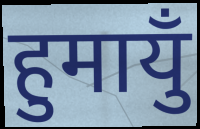
हुमायुँ